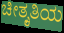
ಚೀತ್ಕೃತಿಯ